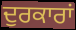
ਦੁਰਕਾਰਾਂ